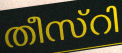
തീസ്റി